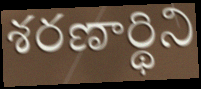
శరణార్థిని